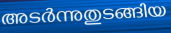
അടർന്നുതുടങ്ങിയ